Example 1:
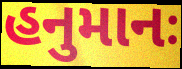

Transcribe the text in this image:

હનુમાનઃ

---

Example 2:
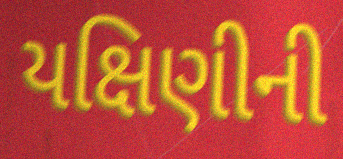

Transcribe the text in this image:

યક્ષિણીની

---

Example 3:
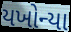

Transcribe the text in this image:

યખોન્યા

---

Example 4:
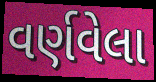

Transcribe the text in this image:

વર્ણવેલા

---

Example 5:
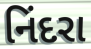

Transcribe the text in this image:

નિંદરા